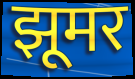
झूमर